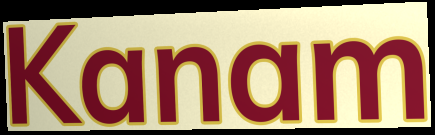
Kanam